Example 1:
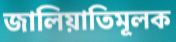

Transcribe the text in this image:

জালিয়াতিমূলক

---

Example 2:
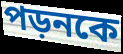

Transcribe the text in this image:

পড়নকে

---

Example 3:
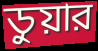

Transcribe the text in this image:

ডুয়ার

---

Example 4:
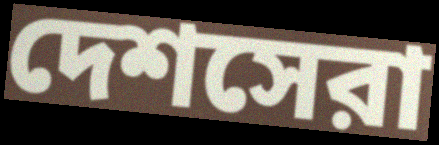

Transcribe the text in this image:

দেশসেরা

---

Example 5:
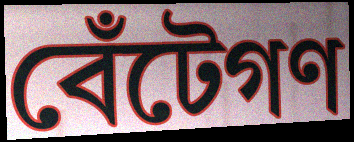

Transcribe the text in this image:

বেঁটেগণ